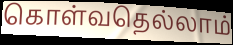
கொள்வதெல்லாம்